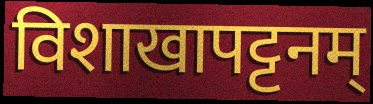
विशाखापट्टनम्